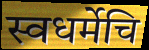
स्वधर्मेचि